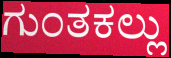
ಗುಂತಕಲ್ಲು